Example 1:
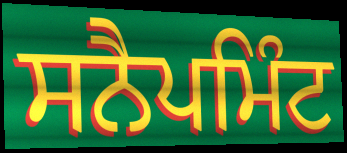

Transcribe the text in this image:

ਸਨੈਪਮਿੰਟ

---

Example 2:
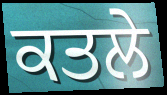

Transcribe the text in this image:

ਕਤਲੇ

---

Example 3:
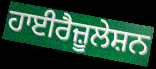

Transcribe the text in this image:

ਹਾਈਰੈਜ਼ੂਲੇਸ਼ਨ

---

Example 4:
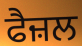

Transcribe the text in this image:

ਫੈਜ਼ਲ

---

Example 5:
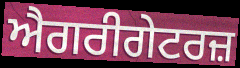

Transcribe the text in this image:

ਐਗਰੀਗੇਟਰਜ਼